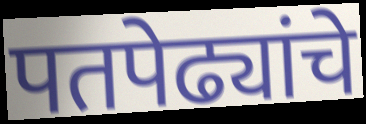
पतपेढ्यांचे